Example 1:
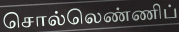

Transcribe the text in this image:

சொல்லெண்ணிப்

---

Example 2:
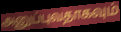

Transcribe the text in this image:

அனுப்புவதாகவும்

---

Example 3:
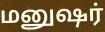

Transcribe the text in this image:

மனுஷர்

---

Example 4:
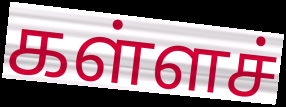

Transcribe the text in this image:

கள்ளச்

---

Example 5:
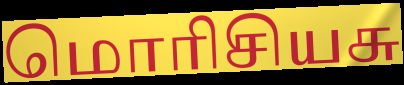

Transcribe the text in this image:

மொரிசியசு